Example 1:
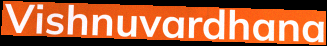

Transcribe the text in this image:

Vishnuvardhana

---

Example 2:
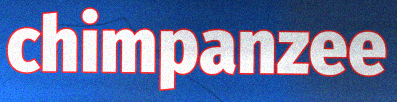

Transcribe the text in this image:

chimpanzee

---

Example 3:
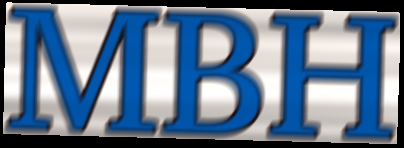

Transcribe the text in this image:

MBH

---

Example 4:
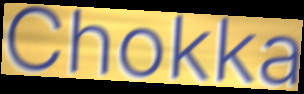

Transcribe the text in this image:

Chokka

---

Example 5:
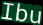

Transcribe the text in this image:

Ibu